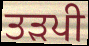
ਤੜਪੀ